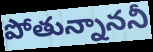
పోతున్నాననీ